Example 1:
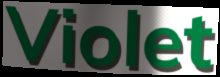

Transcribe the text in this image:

Violet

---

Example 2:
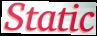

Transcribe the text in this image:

Static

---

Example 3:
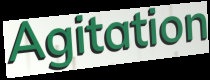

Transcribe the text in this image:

Agitation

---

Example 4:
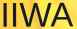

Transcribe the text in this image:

IIWA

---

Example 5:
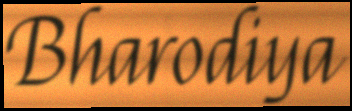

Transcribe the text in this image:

Bharodiya